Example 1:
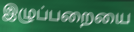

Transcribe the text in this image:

இழுப்பறையை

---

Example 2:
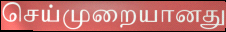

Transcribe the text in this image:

செய்முறையானது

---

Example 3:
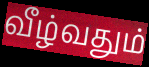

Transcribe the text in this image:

வீழ்வதும்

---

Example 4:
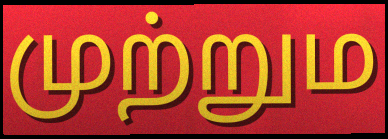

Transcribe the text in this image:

முற்றும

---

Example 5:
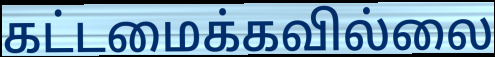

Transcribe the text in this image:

கட்டமைக்கவில்லை